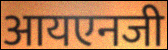
आयएनजी